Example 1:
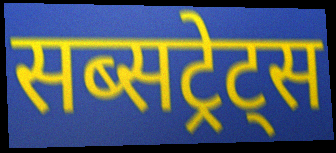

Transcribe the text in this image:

सब्सट्रेट्स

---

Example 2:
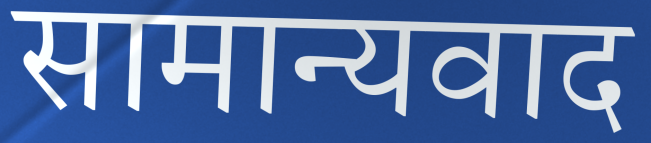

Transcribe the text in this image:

सामान्यवाद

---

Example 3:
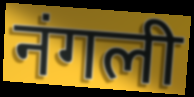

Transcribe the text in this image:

नंगली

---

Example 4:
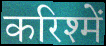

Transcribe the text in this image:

करिश्में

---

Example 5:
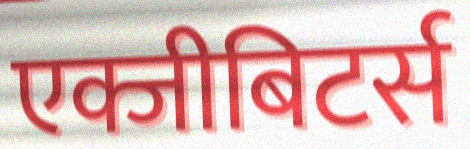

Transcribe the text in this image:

एक्जीबिटर्स